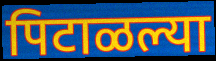
पिटाळल्या